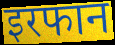
इरफान